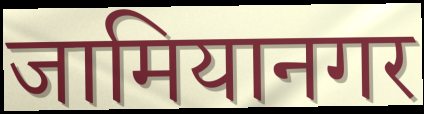
जामियानगर